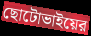
ছোটোভাইয়ের